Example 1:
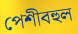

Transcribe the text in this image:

পেশীবহুল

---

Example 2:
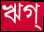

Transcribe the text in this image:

ঋগ্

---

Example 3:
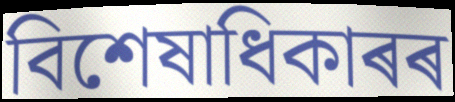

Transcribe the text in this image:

বিশেষাধিকাৰৰ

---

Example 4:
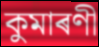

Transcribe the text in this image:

কুমাৰণী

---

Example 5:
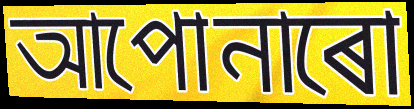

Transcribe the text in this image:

আপোনাৰো